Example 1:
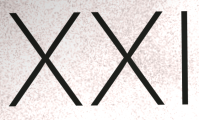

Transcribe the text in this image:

XXI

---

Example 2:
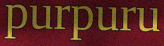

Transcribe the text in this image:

purpuru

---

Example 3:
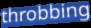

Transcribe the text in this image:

throbbing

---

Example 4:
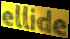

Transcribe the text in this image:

ellide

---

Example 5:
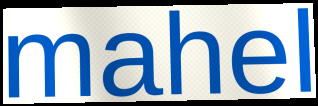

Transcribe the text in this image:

mahel